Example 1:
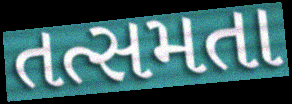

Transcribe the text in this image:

તત્સમતા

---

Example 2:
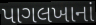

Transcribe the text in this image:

પાગલખાનાં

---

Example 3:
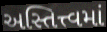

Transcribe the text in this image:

અસ્તિત્ત્વમાં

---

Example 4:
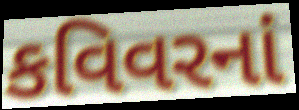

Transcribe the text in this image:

કવિવરનાં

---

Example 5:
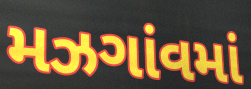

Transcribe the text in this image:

મઝગાંવમાં